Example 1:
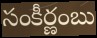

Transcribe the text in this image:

సంకీర్ణంబు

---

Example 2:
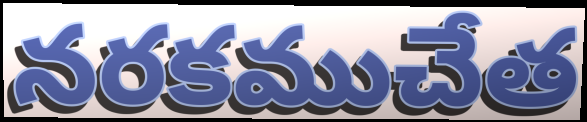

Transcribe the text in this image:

నరకముచేత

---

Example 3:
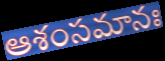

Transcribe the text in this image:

ఆశంసమానః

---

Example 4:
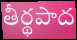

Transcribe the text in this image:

తీర్థపాద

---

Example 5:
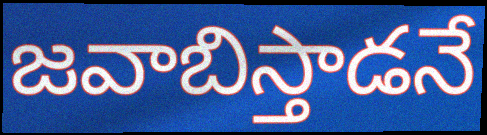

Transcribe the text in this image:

జవాబిస్తాడనే